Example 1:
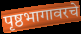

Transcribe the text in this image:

पृष्ठभागावरचे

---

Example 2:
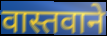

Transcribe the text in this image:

वास्तवाने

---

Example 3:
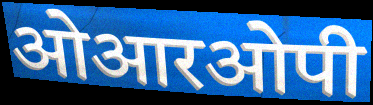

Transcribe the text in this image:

ओआरओपी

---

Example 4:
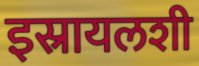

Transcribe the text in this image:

इस्रायलशी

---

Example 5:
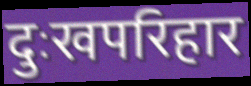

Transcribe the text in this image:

दुःखपरिहार